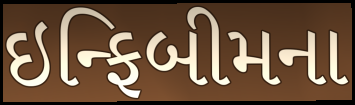
ઇન્ફિબીમના